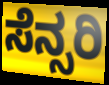
ಸೆನ್ಸರಿ